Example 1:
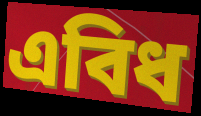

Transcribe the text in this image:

এবিধ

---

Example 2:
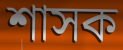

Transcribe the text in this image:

শাসক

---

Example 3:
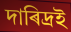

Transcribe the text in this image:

দাৰিদ্ৰই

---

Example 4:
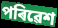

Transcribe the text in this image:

পৰিৱেশ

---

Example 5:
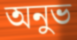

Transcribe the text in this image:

অনুভ